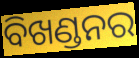
ବିଖଣ୍ଡନର